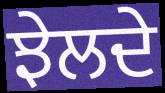
ਝੇਲਦੇ